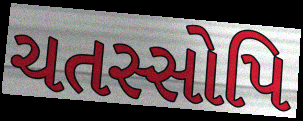
ચતસ્સોપિ